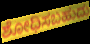
ಶೋಧಿಸಬಹುದು